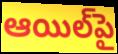
ఆయిల్‌పై